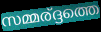
സമ്മര്ദ്ദത്തെ